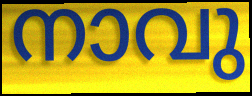
നാവു